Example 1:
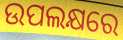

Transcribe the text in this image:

ଉପଲକ୍ଷରେ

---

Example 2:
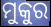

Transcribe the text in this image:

ମୁକୁର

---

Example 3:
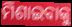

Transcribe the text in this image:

ମିଶାଇବାକୁ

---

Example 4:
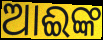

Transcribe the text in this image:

ଆଈଙ୍କ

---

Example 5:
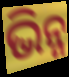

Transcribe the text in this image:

ଭିନ୍ନ